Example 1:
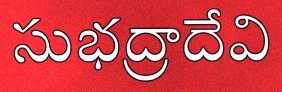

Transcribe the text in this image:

సుభద్రాదేవి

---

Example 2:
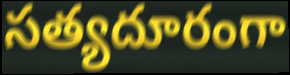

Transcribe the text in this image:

సత్యదూరంగా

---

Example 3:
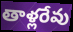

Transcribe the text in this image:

తాళ్లరేవు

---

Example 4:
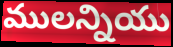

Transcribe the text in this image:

ములన్నియు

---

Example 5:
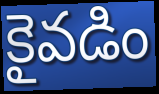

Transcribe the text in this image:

కైవడిం